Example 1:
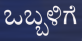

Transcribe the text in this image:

ಒಬ್ಬಳಿಗೆ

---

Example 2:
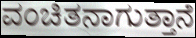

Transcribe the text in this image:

ವಂಚಿತನಾಗುತ್ತಾನೆ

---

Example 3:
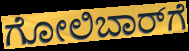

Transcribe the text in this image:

ಗೋಲಿಬಾರ್‌ಗೆ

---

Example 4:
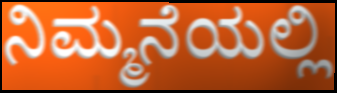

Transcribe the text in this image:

ನಿಮ್ಮನೆಯಲ್ಲಿ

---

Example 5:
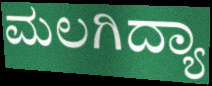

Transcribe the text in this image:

ಮಲಗಿದ್ಯಾ